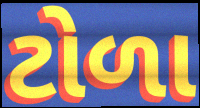
ટોળા